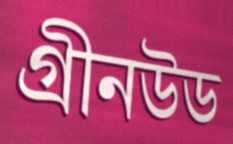
গ্রীনউড